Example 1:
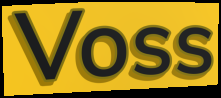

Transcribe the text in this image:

Voss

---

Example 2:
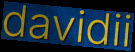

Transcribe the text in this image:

davidii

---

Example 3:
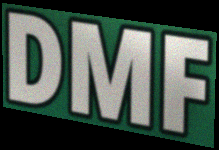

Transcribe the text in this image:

DMF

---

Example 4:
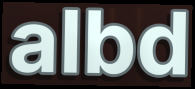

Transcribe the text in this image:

albd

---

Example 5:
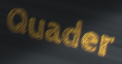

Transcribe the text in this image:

Quader